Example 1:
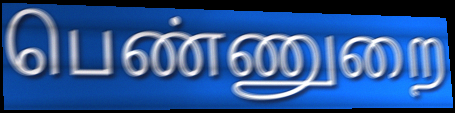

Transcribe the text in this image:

பெண்ணுறை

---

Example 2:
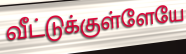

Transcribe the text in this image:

வீட்டுக்குள்ளேயே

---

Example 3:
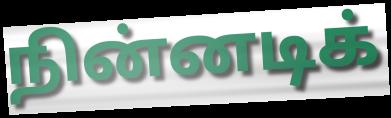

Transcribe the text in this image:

நின்னடிக்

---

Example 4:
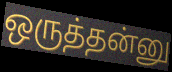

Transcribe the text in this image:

ஒருத்தன்னு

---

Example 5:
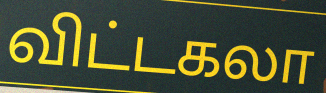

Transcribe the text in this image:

விட்டகலா